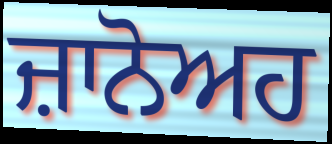
ਜ਼ਾਨੋਅਹ